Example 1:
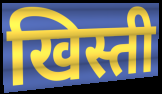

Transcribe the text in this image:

खिस्ती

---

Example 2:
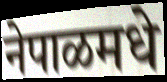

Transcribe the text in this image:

नेपाळमधे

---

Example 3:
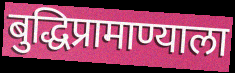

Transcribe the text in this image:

बुद्धिप्रामाण्याला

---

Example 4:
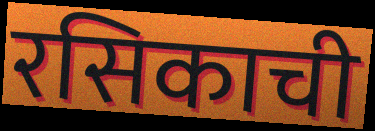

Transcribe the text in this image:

रसिकाची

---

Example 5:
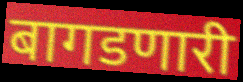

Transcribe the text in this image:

बागडणारी